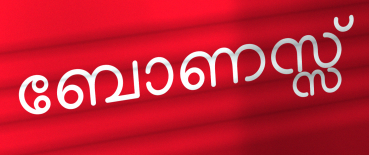
ബോണസ്സ്